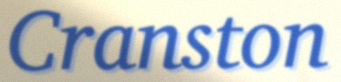
Cranston